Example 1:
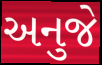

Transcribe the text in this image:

અનુજે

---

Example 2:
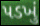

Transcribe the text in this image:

પડખું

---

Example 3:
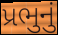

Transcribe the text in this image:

પ્રભુનું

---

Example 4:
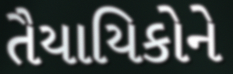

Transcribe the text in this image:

તૈયાયિકોને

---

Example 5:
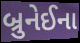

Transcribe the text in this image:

બ્રુનેઈના